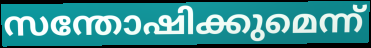
സന്തോഷിക്കുമെന്ന്